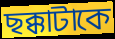
ছক্কাটাকে